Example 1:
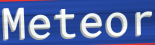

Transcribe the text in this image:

Meteor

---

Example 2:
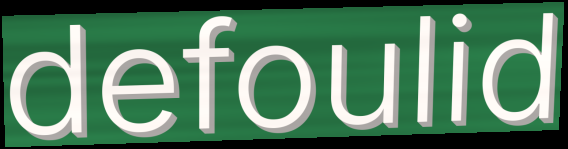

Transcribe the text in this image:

defoulid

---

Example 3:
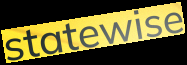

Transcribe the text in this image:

statewise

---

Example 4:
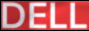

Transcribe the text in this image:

DELL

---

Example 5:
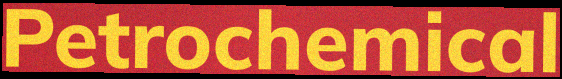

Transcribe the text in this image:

Petrochemical